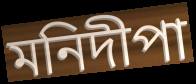
মনিদীপা